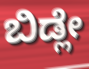
ಬಿಡ್ಲೇ